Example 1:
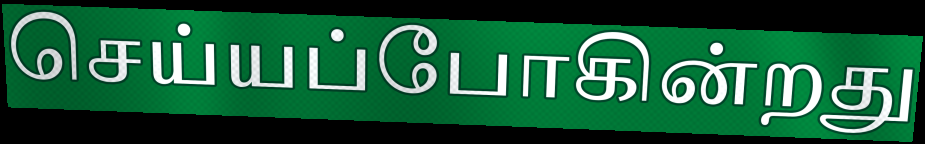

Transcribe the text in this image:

செய்யப்போகின்றது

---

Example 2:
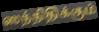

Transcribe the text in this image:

ஸந்நிதிக்கும்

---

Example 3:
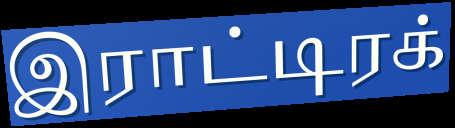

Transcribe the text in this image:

இராட்டிரக்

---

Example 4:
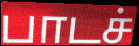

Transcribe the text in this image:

பாடச்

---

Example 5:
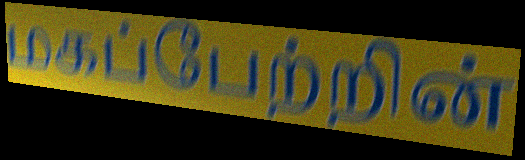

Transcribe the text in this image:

மகப்பேற்றின்